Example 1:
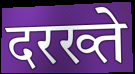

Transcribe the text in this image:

दरख्ते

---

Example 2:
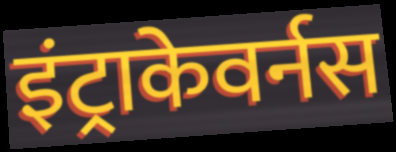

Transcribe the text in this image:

इंट्राकेवर्नस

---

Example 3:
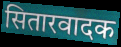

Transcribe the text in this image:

सितारवादक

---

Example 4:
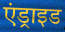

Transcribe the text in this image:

एंड्राइड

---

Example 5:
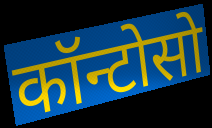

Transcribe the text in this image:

कॉन्टोसो